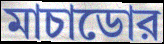
মাচাডোর